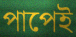
পাপেই